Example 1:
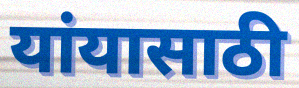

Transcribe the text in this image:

यांयासाठी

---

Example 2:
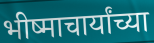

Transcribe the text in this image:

भीष्माचार्यांच्या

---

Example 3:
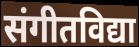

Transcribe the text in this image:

संगीतविद्या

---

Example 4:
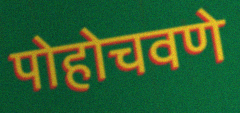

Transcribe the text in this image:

पोहोचवणे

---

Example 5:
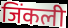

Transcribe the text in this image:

जिंकली